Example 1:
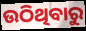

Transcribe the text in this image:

ଉଠିଥିବାରୁ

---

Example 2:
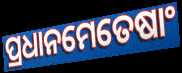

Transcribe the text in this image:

ପ୍ରଧାନମେତେଷାଂ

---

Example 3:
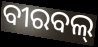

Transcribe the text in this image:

ବୀରବଲ୍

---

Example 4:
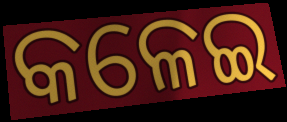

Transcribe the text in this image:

କଳେଇ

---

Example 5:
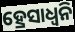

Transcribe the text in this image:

ହ୍ରେସାଧ୍ୱନି